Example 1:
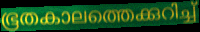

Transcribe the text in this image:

ഭൂതകാലത്തെക്കുറിച്ച്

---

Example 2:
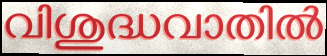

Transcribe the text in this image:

വിശുദ്ധവാതിൽ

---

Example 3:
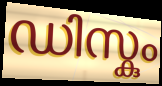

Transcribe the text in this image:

ഡിസ്കും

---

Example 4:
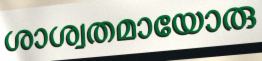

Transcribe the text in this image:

ശാശ്വതമായോരു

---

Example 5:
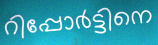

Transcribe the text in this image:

റിപ്പോർട്ടിനെ